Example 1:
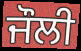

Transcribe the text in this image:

ਜੌਲੀ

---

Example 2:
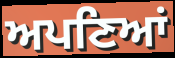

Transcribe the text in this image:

ਅਪਣਿਆਂ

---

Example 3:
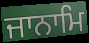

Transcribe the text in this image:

ਜਾਨਾਮਿ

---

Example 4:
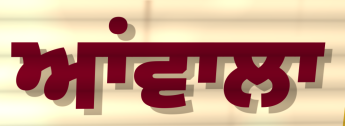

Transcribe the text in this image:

ਆਂਵਾਲਾ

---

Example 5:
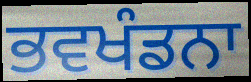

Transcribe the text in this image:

ਭਵਖੰਡਨਾ